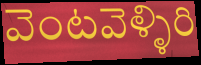
వెంటవెళ్ళిరి